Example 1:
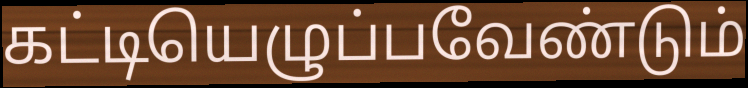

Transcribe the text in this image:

கட்டியெழுப்பவேண்டும்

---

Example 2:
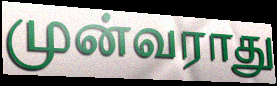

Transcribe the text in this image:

முன்வராது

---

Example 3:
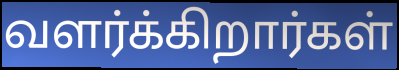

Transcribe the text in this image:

வளர்க்கிறார்கள்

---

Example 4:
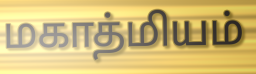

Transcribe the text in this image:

மகாத்மியம்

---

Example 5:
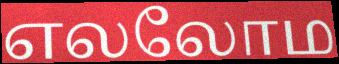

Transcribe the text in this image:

எலலோம